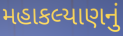
મહાકલ્યાણનું